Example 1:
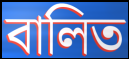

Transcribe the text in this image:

বালিত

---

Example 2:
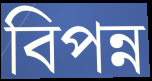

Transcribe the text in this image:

বিপন্ন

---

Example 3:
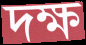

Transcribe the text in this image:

দক্ষ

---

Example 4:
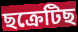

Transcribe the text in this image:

ছক্ৰেটিছ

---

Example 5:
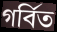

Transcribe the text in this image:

গৰ্বিত